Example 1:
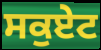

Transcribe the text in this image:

ਸਕੁਏਟ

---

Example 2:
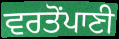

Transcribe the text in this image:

ਵਰਤੋਂਪਾਣੀ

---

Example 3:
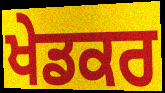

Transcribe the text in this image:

ਖੇਡਕਰ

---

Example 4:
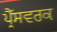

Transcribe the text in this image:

ਪ੍ਰੈੱਸਵਰਕ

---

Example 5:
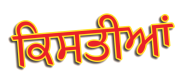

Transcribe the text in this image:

ਕਿਸਤੀਆਂ